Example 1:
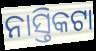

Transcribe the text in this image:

ନାସ୍ତିକଟା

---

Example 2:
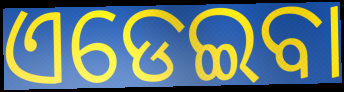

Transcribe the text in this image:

ଏଡେଇବା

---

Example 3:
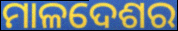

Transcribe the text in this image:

ମାଳଦେଶର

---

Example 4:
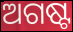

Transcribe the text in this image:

ଅଗଷ୍ଟ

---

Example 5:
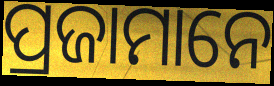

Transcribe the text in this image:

ପ୍ରଜାମାନେ